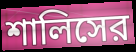
শালিসের